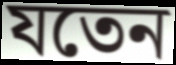
যতেন